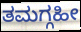
ತಮಗ್ಗಹೀ